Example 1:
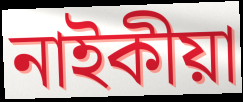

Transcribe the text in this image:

নাইকীয়া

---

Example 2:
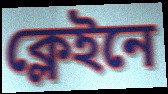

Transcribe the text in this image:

ক্লেইনে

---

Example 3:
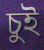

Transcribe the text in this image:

চুই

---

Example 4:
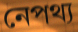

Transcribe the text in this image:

নেপথ্য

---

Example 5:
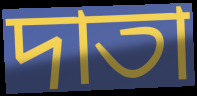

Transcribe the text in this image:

দাতা